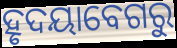
ହୃଦୟାବେଗରୁ